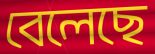
বেলেছে